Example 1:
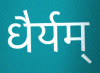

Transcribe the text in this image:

धैर्यम्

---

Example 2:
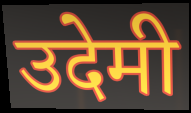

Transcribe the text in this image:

उदेमी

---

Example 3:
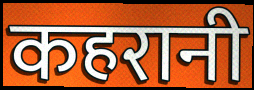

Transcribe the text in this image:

कहरानी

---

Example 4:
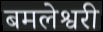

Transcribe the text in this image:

बमलेश्वरी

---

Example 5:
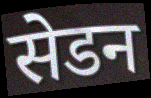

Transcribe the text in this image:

सेडन